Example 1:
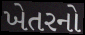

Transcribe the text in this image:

ખેતરનો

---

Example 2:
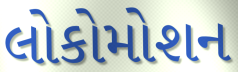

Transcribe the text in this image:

લોકોમોશન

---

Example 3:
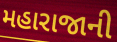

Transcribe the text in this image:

મહારાજાની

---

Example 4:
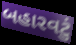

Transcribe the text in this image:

બહારવટું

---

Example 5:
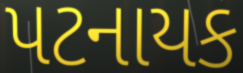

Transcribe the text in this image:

પટનાયક